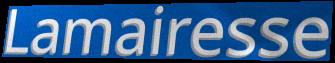
Lamairesse